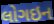
લોગઇન